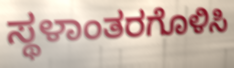
ಸ್ಥಳಾಂತರಗೊಳಿಸಿ